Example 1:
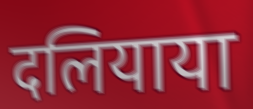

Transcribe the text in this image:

दलियाया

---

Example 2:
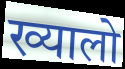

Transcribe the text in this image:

ख्यालो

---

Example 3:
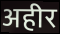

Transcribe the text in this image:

अहीर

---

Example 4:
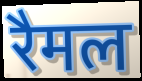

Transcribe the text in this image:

रैमल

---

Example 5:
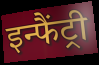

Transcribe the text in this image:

इन्फैंट्री